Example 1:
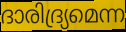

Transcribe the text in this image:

ദാരിദ്ര്യമെന്ന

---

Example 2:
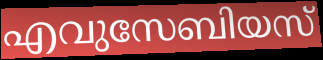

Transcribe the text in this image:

എവുസേബിയസ്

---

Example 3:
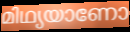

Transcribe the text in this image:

മിഥ്യയാണോ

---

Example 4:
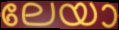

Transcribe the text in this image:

ലേയാ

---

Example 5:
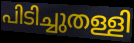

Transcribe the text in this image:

പിടിച്ചുതള്ളി